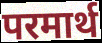
परमार्थ